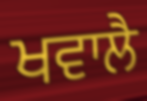
ਖਵਾਲੈ